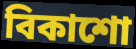
বিকাশো